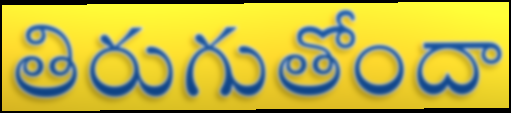
తిరుగుతోందా